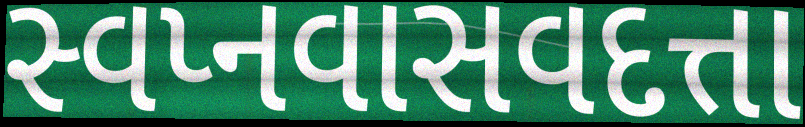
સ્વપ્નવાસવદત્તા